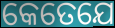
କେତେଯେ